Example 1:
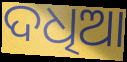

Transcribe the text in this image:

ଦଧିଆ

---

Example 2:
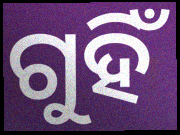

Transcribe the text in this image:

ଗୁହିଁ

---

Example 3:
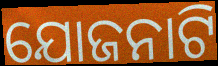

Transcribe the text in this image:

ଯୋଜନାଟି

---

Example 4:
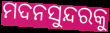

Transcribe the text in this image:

ମଦନସୁନ୍ଦରକୁ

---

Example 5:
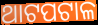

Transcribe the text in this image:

ଥାଟପଟାଳ